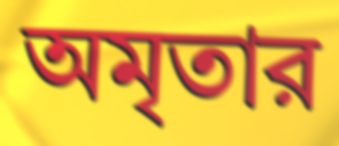
অমৃতার